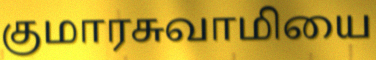
குமாரசுவாமியை